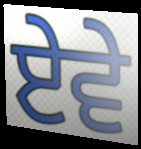
ਏਵੇ